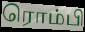
ரொம்பி